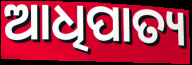
ଆଧିପାତ୍ୟ